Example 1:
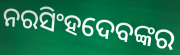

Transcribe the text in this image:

ନରସିଂହଦେବଙ୍କର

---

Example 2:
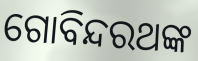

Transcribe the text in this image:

ଗୋବିନ୍ଦରଥଙ୍କ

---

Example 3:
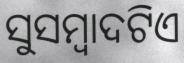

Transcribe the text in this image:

ସୁସମ୍ବାଦଟିଏ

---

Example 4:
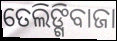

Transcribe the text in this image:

ତେଲିଙ୍ଗିବାଜା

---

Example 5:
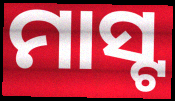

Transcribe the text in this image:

ମାସ୍ଟ